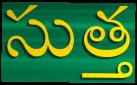
సుత్త